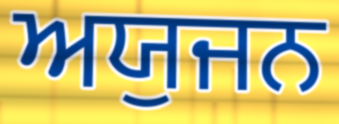
ਅਯੁਜਨ